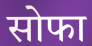
सोफा